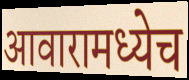
आवारामध्येच